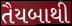
તૈયબાથી